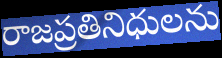
రాజప్రతినిధులను